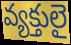
వ్యక్తులై